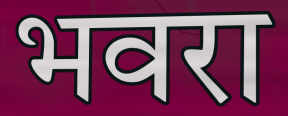
भवरा